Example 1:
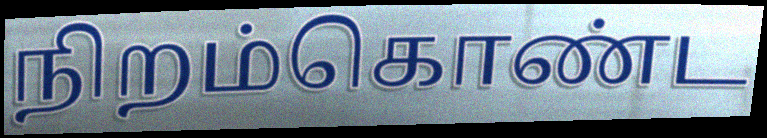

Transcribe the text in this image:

நிறம்கொண்ட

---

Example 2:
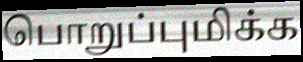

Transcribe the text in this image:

பொறுப்புமிக்க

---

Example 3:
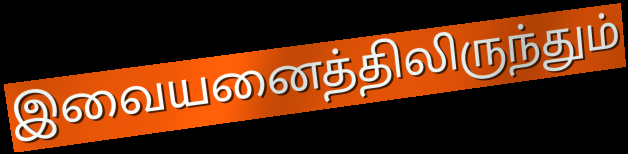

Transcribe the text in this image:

இவையனைத்திலிருந்தும்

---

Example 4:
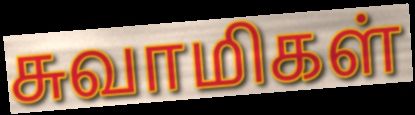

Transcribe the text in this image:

சுவாமிகள்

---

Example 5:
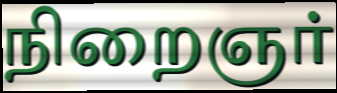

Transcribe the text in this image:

நிறைஞர்